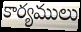
కార్యములు